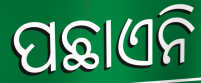
ପଛାଏନି